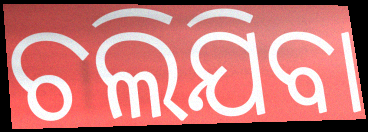
ଚଲିଯିବା